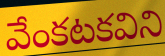
వేంకటకవిని